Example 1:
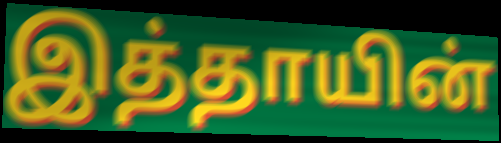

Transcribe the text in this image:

இத்தாயின்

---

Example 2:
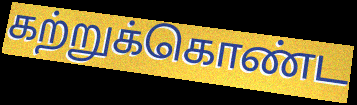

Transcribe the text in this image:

கற்றுக்கொண்ட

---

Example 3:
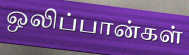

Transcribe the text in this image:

ஒலிப்பான்கள்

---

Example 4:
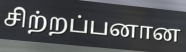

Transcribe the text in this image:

சிற்றப்பனான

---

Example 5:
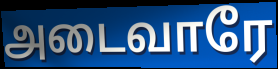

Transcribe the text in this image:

அடைவாரே